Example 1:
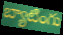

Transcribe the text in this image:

బ్యాటింగు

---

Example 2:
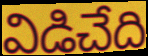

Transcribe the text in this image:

విడిచేది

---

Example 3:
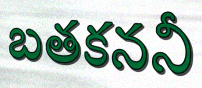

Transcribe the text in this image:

బతకననీ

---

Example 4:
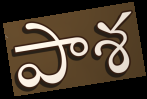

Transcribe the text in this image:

పాశ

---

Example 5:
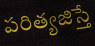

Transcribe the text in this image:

పరిత్యజిస్తే